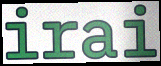
irai